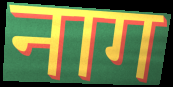
नाग